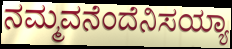
ನಮ್ಮವನೆಂದೆನಿಸಯ್ಯಾ